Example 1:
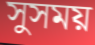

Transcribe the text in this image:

সুসময়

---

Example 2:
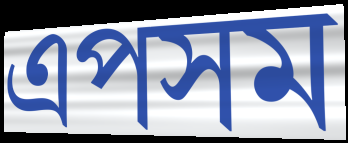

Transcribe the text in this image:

এপসম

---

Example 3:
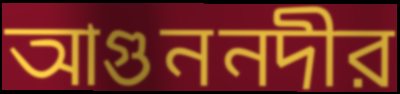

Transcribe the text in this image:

আগুননদীর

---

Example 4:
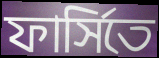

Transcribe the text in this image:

ফার্সিতে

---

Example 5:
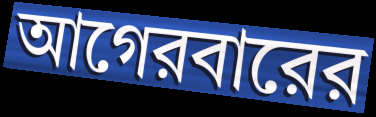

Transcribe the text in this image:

আগেরবারের